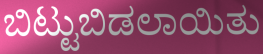
ಬಿಟ್ಟುಬಿಡಲಾಯಿತು